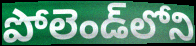
పోలెండ్‌లోని